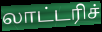
லாட்டரிச்